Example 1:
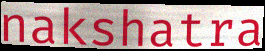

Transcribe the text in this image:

nakshatra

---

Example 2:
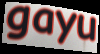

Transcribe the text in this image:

gayu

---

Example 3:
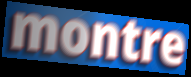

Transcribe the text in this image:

montre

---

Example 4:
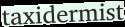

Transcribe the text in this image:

taxidermist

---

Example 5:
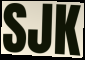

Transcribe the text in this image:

SJK